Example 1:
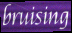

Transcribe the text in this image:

bruising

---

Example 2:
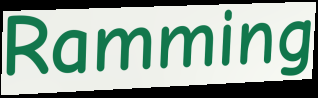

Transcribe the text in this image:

Ramming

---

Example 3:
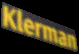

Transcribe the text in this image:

Klerman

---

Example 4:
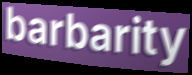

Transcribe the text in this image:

barbarity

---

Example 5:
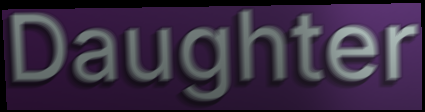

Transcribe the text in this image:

Daughter